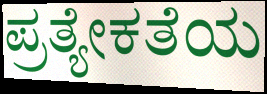
ಪ್ರತ್ಯೇಕತೆಯ